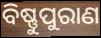
ବିଷ୍ଣୁପୁରାଣ